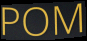
POM